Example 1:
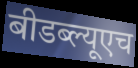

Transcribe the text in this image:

बीडब्ल्यूएच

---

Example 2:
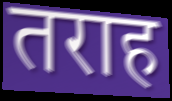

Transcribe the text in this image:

तराह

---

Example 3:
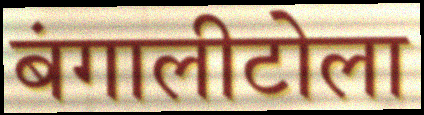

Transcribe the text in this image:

बंगालीटोला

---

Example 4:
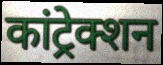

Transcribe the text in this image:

कांट्रेक्शन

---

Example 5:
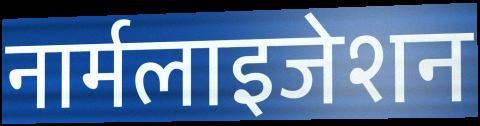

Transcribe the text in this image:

नार्मलाइजेशन